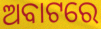
ଅବାଟରେ